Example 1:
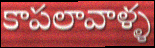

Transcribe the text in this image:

కాపలావాళ్ళ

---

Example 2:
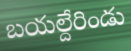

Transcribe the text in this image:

బయల్దేరిండు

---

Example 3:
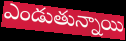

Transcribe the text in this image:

ఎండుతున్నాయి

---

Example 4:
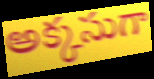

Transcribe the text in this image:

అక్కసుగా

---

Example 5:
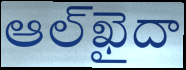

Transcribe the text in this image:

ఆల్‌ఖైదా